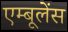
एम्बूलेंस